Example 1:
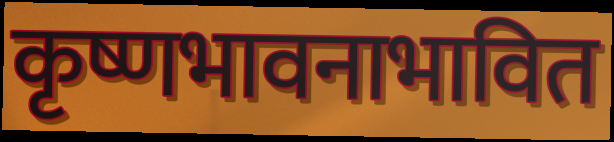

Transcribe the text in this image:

कृष्णभावनाभावित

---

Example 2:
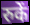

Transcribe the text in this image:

रुकें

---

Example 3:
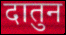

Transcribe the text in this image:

दातुन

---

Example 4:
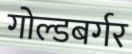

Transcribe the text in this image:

गोल्डबर्गर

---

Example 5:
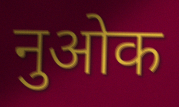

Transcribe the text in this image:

नुओक